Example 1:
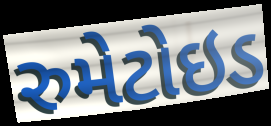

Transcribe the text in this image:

રુમેટોઇડ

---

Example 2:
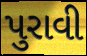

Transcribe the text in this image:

પુરાવી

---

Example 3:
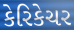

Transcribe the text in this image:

કેરિકેચર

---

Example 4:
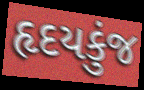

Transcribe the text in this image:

હૃદયકુંજ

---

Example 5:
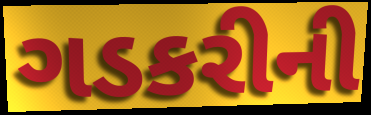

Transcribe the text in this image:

ગડકરીની